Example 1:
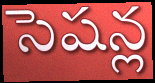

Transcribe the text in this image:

సెషన్ల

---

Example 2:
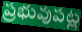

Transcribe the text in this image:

ప్రభువుపట్ల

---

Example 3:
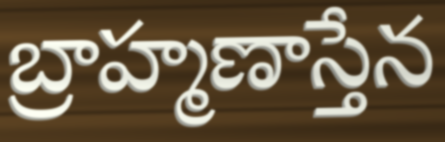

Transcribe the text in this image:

బ్రాహ్మణాస్తేన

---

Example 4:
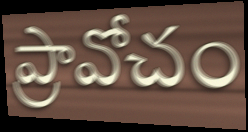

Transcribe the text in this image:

ప్రావోచం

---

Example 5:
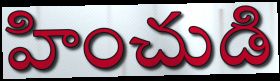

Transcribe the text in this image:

హించుడి